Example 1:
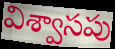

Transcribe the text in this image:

విశ్వాసపు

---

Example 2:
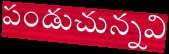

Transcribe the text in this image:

పండుచున్నవి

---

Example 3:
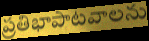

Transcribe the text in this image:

ప్రతిభాపాటవాలను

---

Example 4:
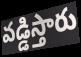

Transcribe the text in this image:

వడ్డిస్తారు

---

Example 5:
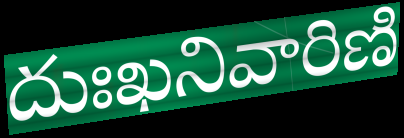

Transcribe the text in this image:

దుఃఖనివారిణి